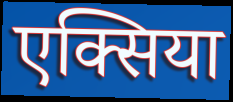
एक्सिया